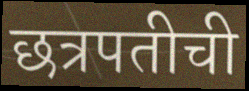
छत्रपतीची